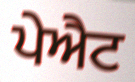
ਪੇਐਟ